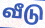
வீடு